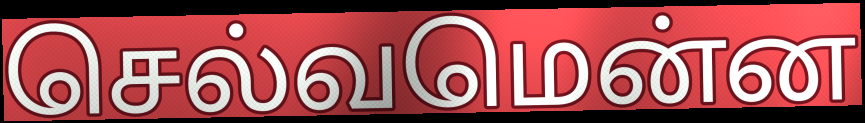
செல்வமென்ன